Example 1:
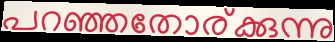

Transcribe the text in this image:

പറഞ്ഞതോര്ക്കുന്നു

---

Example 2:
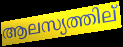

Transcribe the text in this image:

ആലസ്യത്തില്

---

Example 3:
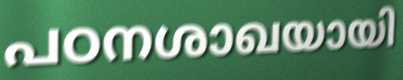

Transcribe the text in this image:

പഠനശാഖയായി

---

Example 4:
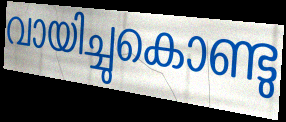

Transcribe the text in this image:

വായിച്ചുകൊണ്ടു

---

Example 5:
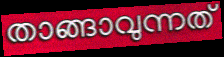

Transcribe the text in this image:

താങ്ങാവുന്നത്